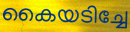
കൈയടിച്ചേ